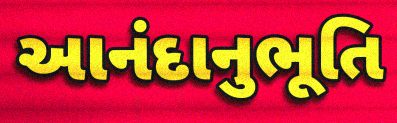
આનંદાનુભૂતિ